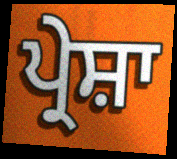
ਪ੍ਰੇਸ਼ਾ